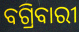
ବଗ୍ରିବାରୀ